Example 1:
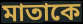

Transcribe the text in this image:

মাতাকে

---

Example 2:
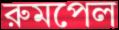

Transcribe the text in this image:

রুমপেল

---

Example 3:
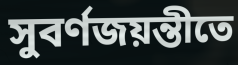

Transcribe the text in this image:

সুবর্ণজয়ন্তীতে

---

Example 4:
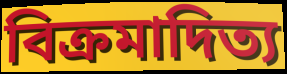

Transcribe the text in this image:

বিক্রমাদিত্য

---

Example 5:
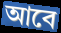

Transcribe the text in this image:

আবে